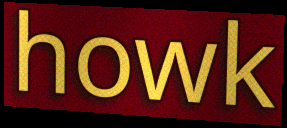
howk